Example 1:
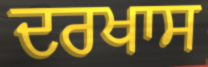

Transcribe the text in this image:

ਦਰਖਾਸ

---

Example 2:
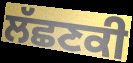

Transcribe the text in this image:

ਲੱਛਣਕੀ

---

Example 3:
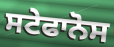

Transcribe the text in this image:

ਸਟੇਫਾਨੋਸ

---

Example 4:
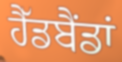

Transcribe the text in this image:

ਹੈੱਡਬੈਂਡਾਂ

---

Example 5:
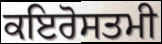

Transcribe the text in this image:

ਕਇਰੋਸਤਮੀ